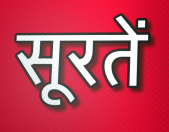
सूरतें